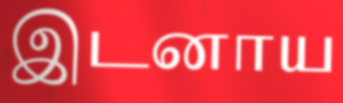
இடனாய